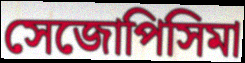
সেজোপিসিমা